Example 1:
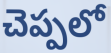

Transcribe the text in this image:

చెప్పలో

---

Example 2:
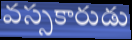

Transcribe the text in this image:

వస్సకారుడు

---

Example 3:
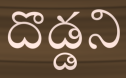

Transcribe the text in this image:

దొడ్డని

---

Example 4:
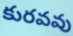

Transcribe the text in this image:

కురవవు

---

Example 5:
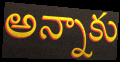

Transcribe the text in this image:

అన్నాకు